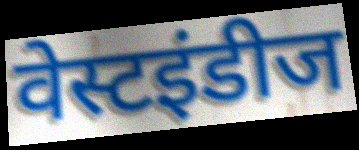
वेस्टइंडीज